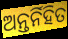
ଅନ୍ତର୍ନିହିତ